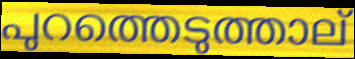
പുറത്തെടുത്താല്